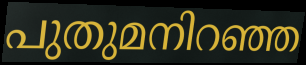
പുതുമനിറഞ്ഞ